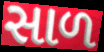
સાળ